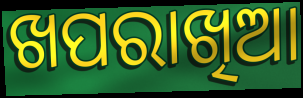
ଖପରାଖିଆ